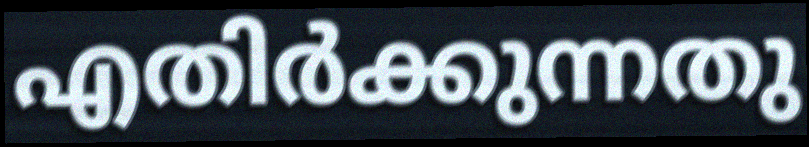
എതിർക്കുന്നതു